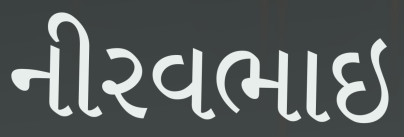
નીરવભાઇ